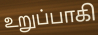
உறுப்பாகி